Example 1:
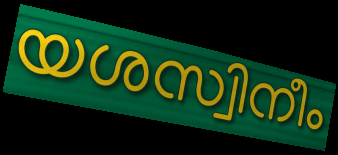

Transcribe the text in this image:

യശസ്വിനീം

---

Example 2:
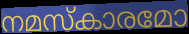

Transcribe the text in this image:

നമസ്കാരമോ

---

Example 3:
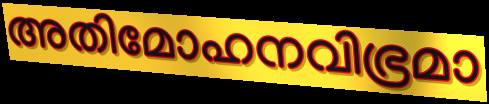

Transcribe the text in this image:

അതിമോഹനവിഭ്രമാ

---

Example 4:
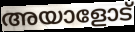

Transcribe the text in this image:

അയാളോട്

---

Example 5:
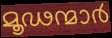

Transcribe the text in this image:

മൂഢന്മാർ